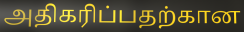
அதிகரிப்பதற்கான